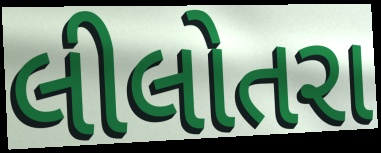
લીલોતરા